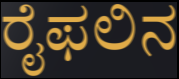
ರೈಫಲಿನ